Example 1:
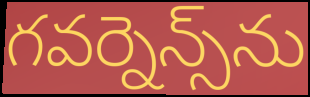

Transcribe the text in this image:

గవర్నెన్స్‌ను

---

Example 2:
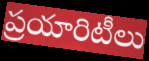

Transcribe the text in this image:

ప్రయారిటీలు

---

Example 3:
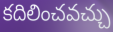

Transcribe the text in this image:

కదిలించవచ్చు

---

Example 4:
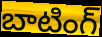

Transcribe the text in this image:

బాటింగ్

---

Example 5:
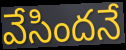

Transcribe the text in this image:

వేసిందనే